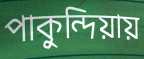
পাকুন্দিয়ায়